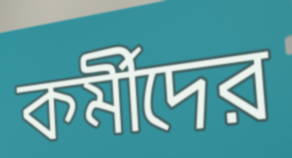
কর্মীদের